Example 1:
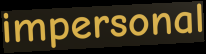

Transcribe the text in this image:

impersonal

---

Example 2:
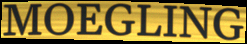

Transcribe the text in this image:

MOEGLING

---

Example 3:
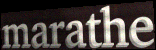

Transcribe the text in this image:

marathe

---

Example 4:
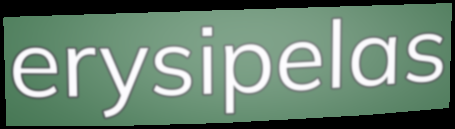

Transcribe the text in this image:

erysipelas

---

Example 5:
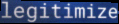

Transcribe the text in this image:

legitimize